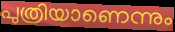
പുത്രിയാണെന്നും